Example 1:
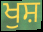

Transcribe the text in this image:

ਖੁਸ਼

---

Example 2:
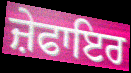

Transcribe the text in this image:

ਜ਼ੇਫਾਇਰ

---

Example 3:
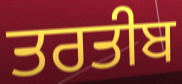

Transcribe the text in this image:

ਤਰਤੀਬ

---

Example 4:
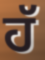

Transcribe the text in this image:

ਹੱ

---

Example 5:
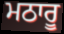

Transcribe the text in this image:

ਮਠਾਰੂ